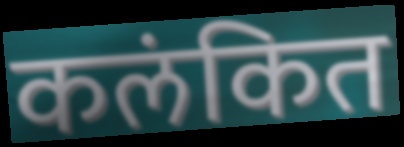
कलंकित